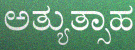
ಅತ್ಯುತ್ಸಾಹ